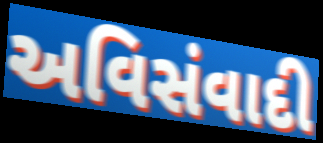
અવિસંવાદી